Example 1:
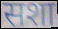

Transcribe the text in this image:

सशा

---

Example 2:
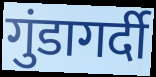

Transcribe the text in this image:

गुंडागर्दी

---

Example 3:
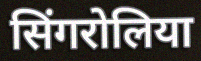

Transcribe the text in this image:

सिंगरोलिया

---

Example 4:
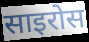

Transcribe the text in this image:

साइरोस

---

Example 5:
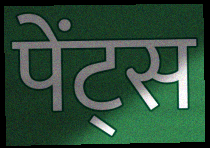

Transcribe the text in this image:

पेंट्स